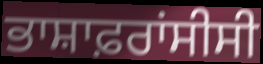
ਭਾਸ਼ਾਫ਼ਰਾਂਸੀਸੀ